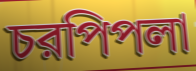
চরপিপলা